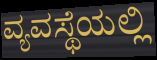
ವ್ಯವಸ್ಥೆಯಲ್ಲಿ